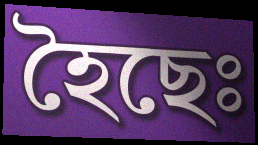
হৈছেঃ